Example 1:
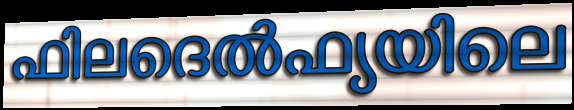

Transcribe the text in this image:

ഫിലദെൽഫ്യയിലെ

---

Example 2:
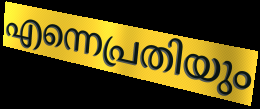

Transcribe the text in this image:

എന്നെപ്രതിയും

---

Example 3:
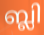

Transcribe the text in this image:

ബ്ലി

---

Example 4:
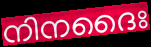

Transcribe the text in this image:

നിനദൈഃ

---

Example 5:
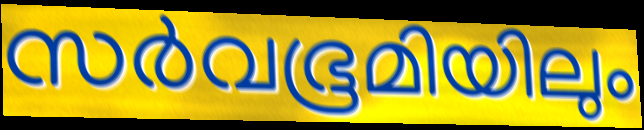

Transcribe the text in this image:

സർവഭൂമിയിലും